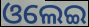
ଓଲେଇ